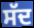
ਸੱਦ